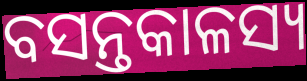
ବସନ୍ତକାଳସ୍ୟ